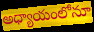
అధ్యాయంలోనూ